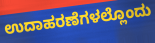
ಉದಾಹರಣೆಗಳಲ್ಲೊಂದು